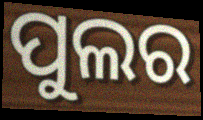
ପୁଲର